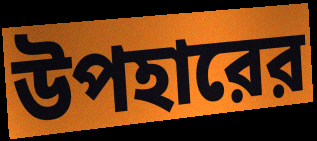
উপহারের